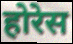
होरेस